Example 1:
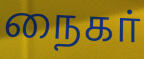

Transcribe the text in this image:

நைகர்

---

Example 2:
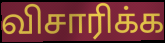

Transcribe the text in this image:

விசாரிக்க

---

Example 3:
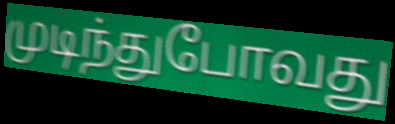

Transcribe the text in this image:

முடிந்துபோவது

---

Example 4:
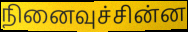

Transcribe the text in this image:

நினைவுச்சின்ன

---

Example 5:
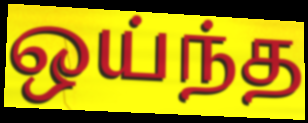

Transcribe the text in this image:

ஒய்ந்த